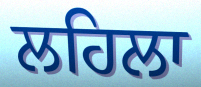
ਲਹਿਲਾ